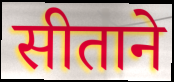
सीताने